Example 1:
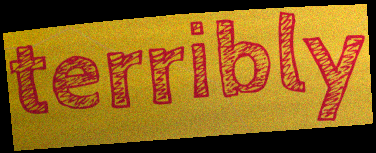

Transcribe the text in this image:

terribly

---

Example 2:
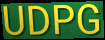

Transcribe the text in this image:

UDPG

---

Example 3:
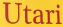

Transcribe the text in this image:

Utari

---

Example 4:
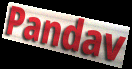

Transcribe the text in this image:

Pandav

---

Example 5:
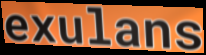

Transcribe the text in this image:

exulans